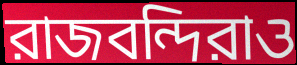
রাজবন্দিরাও